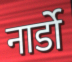
नार्डो